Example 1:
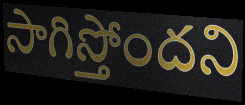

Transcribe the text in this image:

సాగిస్తోందని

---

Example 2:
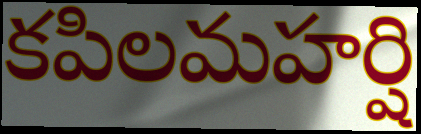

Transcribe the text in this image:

కపిలమహర్షి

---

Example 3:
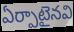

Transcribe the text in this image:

ఏర్పాటైనవి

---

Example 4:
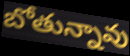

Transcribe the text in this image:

బోతున్నావు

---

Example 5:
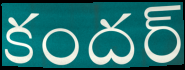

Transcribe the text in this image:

కందర్